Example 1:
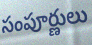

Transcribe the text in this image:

సంపూర్ణులు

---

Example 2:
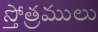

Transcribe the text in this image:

స్తోత్రములు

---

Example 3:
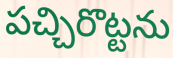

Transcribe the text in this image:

పచ్చిరొట్టను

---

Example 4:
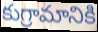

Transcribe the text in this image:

కుగ్రామానికి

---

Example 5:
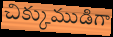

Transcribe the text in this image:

చిక్కుముడిగా